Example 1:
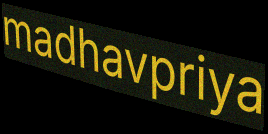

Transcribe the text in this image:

madhavpriya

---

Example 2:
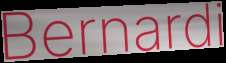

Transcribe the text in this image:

Bernardi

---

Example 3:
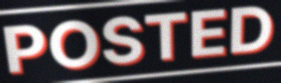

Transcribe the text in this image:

POSTED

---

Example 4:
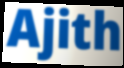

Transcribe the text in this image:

Ajith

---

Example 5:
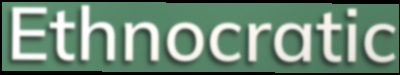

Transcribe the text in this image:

Ethnocratic